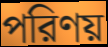
পরিণয়